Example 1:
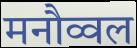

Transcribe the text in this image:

मनौव्वल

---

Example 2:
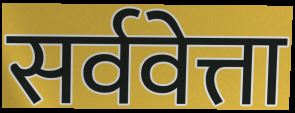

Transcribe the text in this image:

सर्ववेत्ता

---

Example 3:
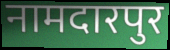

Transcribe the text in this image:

नामदारपुर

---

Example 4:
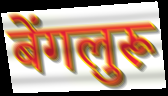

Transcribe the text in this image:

बेंगलुरू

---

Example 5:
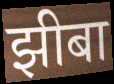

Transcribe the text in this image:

झीबा